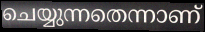
ചെയ്യുന്നതെന്നാണ്